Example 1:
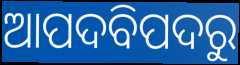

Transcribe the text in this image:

ଆପଦବିପଦରୁ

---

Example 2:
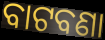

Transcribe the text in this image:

ବାଟବଣା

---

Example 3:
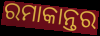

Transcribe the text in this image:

ରମାକାନ୍ତର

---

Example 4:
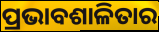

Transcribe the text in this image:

ପ୍ରଭାବଶାଳିତାର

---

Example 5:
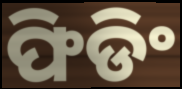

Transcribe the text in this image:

ଫିଡିଂ